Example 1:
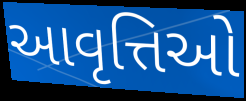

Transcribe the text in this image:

આવૃત્તિઓ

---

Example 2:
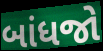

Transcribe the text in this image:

બાંધજો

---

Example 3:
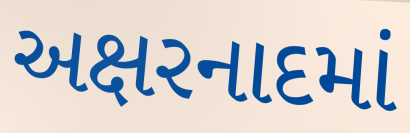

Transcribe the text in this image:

અક્ષરનાદમાં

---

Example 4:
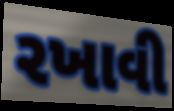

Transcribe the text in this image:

રખાવી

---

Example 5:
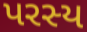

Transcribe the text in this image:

પરસ્ય